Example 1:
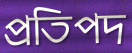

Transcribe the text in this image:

প্ৰতিপদ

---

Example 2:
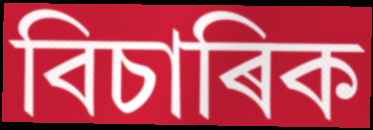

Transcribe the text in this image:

বিচাৰিক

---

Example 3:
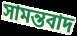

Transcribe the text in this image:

সামন্তবাদ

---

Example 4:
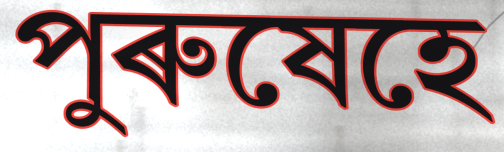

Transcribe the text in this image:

পুৰুষেহে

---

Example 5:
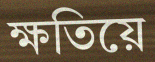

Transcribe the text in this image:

ক্ষতিয়ে